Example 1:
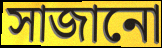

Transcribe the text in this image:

সাজানো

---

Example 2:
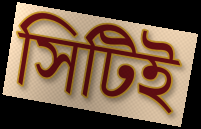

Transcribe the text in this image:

সিটিই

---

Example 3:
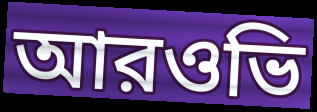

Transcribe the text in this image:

আরওভি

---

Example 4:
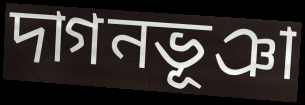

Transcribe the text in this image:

দাগনভূঞা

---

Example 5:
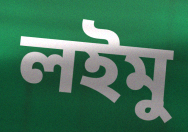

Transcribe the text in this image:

লইমু